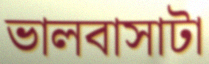
ভালবাসাটা